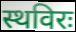
स्थविरः